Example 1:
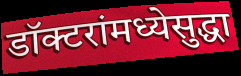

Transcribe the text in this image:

डॉक्टरांमध्येसुद्धा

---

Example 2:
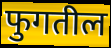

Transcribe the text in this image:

फुगतील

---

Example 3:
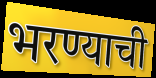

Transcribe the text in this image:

भरण्याची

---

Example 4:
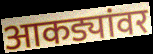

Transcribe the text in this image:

आकड्यांवर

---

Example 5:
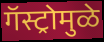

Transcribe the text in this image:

गॅस्ट्रोमुळे